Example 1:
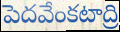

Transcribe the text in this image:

పెదవేంకటాద్రి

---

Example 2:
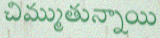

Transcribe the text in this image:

చిమ్ముతున్నాయి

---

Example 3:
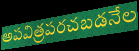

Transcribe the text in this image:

అపవిత్రపరచబడనేల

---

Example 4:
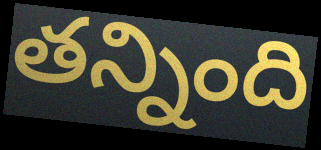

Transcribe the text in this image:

తన్నింది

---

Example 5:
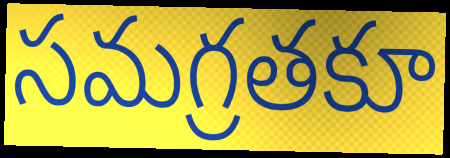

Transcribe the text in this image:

సమగ్రతకూ